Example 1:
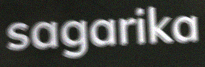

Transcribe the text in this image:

sagarika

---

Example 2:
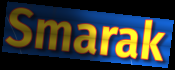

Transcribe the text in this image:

Smarak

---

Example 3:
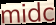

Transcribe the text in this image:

midc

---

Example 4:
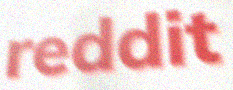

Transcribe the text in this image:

reddit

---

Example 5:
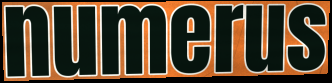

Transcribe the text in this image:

numerus